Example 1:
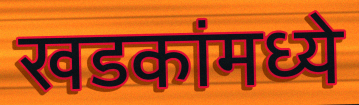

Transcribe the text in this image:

खडकांमध्ये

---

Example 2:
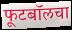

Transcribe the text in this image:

फूटबॉलचा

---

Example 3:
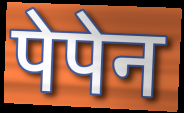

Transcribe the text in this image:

पेपेन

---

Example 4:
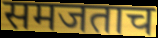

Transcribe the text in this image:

समजताच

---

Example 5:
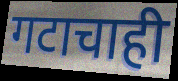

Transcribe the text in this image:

गटाचाही